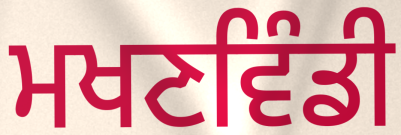
ਮਖਣਵਿੰਡੀ